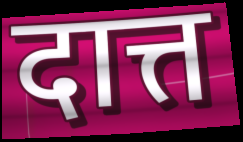
दात्त